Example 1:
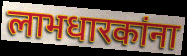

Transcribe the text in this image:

लाभधारकांना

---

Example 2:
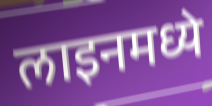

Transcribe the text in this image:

लाइनमध्ये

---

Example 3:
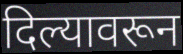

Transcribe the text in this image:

दिल्यावरून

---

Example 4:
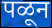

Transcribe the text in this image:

पळून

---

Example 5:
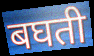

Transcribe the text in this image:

बघती